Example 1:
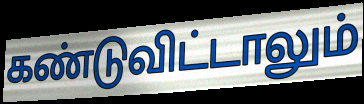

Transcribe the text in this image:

கண்டுவிட்டாலும்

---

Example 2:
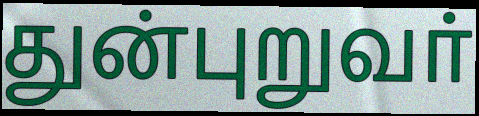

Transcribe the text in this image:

துன்புறுவர்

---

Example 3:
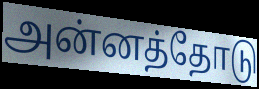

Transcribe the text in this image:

அன்னத்தோடு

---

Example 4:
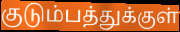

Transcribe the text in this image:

குடும்பத்துக்குள்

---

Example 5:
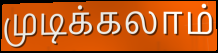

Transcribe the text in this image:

முடிக்கலாம்